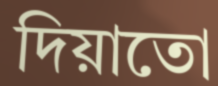
দিয়াতো